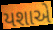
યશાએ